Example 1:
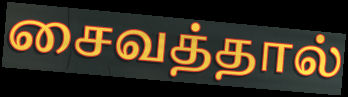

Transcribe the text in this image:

சைவத்தால்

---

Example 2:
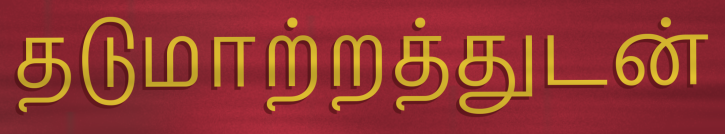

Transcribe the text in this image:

தடுமாற்றத்துடன்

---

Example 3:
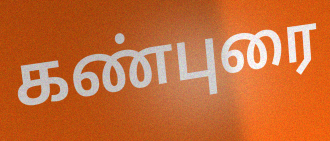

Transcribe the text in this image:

கண்புரை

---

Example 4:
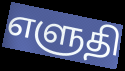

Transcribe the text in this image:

எளுதி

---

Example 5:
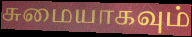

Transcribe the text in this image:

சுமையாகவும்